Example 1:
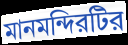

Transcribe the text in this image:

মানমন্দিরটির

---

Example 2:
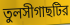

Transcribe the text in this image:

তুলসীগাছটির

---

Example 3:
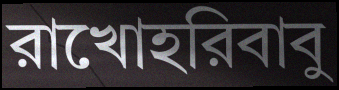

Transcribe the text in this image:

রাখোহরিবাবু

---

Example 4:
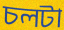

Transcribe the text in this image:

চলটা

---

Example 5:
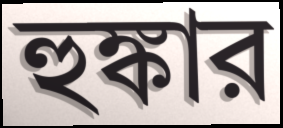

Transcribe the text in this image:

হুঙ্কার